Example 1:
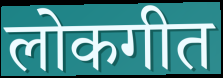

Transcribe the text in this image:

लोकगीत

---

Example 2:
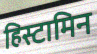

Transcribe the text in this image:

हिस्टामिन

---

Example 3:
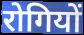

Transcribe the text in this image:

रोगियों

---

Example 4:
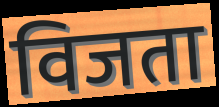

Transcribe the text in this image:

विजता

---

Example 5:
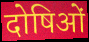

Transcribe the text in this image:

दोषिओं